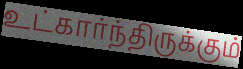
உட்கார்ந்திருக்கும்